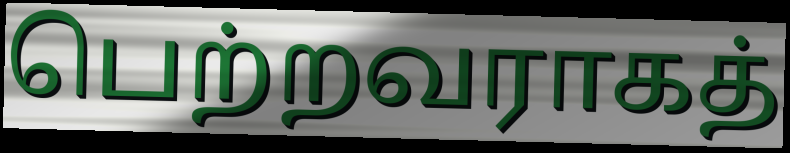
பெற்றவராகத்